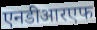
एनडीआरएफ